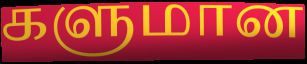
களுமான